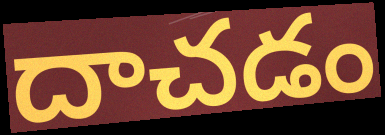
దాచడం